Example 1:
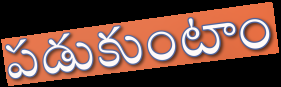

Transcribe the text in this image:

పడుకుంటాం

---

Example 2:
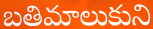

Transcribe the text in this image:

బతిమాలుకుని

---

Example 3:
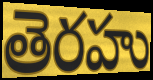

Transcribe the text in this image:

తెరహు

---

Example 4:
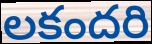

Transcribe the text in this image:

లకందరి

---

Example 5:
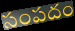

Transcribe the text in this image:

సంపదం